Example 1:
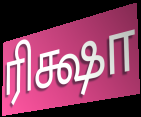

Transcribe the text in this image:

ரிக்ஷா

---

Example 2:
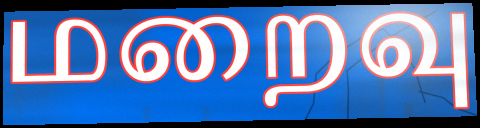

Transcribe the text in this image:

மறைவு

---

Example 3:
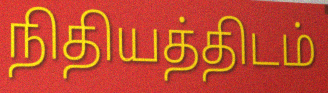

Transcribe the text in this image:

நிதியத்திடம்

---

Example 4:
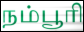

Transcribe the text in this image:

நம்பூரி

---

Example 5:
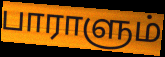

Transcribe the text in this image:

பாராளும்